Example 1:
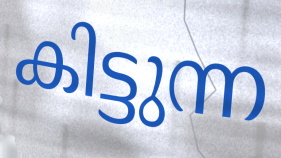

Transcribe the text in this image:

കിട്ടുന്ന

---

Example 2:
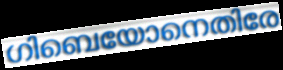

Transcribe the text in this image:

ഗിബെയോനെതിരേ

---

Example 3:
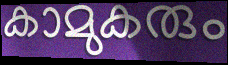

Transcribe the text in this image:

കാമുകരും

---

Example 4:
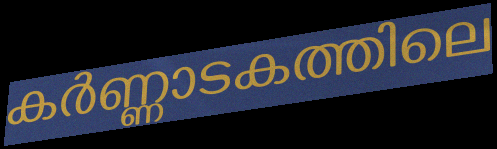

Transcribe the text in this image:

കർണ്ണാടകത്തിലെ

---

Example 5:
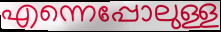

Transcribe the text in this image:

എന്നെപ്പോലുള്ള